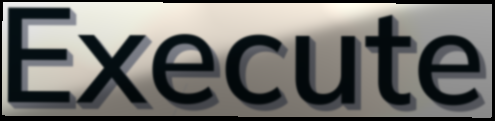
Execute